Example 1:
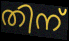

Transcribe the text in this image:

തിന്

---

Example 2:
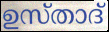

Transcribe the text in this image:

ഉസ്താദ്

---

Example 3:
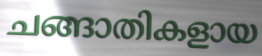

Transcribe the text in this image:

ചങ്ങാതികളായ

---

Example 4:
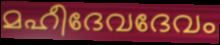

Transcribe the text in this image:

മഹീദേവദേവം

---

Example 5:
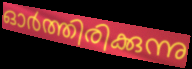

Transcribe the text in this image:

ഓർത്തിരിക്കുന്നു